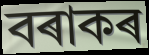
বৰাকৰ